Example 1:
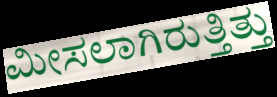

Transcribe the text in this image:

ಮೀಸಲಾಗಿರುತ್ತಿತ್ತು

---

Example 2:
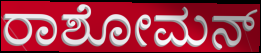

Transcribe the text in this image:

ರಾಶೋಮನ್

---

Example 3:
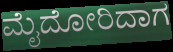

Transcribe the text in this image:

ಮೈದೋರಿದಾಗ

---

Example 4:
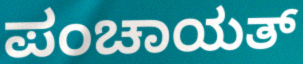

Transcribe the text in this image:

ಪಂಚಾಯತ್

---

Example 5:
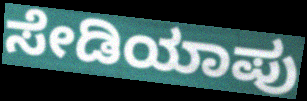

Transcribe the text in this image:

ಸೇಡಿಯಾಪು